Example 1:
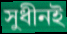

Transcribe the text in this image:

সুধীনই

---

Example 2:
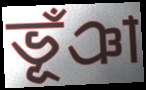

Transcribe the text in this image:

ভূঁঞা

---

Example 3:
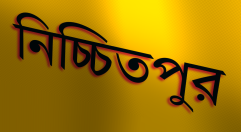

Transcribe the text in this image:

নিচ্চিতপুর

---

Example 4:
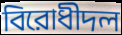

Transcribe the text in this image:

বিরোধীদল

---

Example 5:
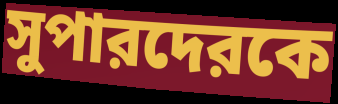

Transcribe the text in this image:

সুপারদেরকে